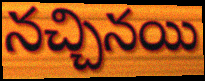
నచ్చినయి